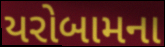
યરોબામના